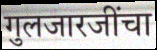
गुलजारजींचा